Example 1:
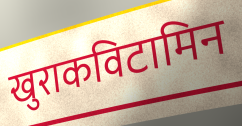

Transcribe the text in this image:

खुराकविटामिन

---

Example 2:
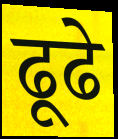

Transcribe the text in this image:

ढूढे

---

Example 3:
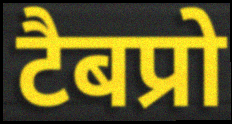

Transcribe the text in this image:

टैबप्रो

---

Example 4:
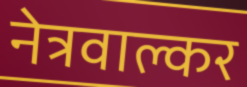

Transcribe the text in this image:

नेत्रवाल्कर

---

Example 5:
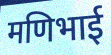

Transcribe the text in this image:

मणिभाई